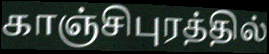
காஞ்சிபுரத்தில்